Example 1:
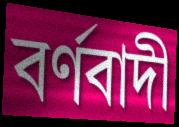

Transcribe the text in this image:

বৰ্ণবাদী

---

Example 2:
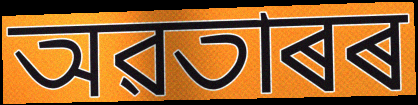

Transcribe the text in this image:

অৱতাৰৰ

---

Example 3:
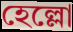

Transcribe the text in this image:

হেল্লো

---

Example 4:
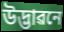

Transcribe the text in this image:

উদ্ভাৱনে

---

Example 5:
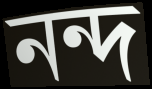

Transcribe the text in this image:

নন্দ